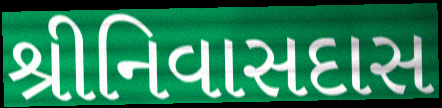
શ્રીનિવાસદાસ